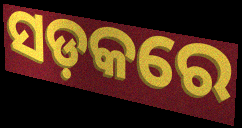
ସଡ଼କରେ